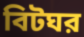
বিটঘর